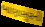
બાણાસુરની